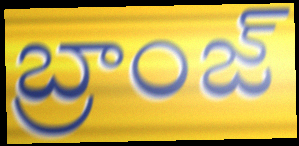
బ్రాంజ్